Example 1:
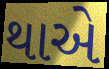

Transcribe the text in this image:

થાએ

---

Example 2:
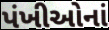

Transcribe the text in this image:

પંખીઓનાં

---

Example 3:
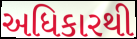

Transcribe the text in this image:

અધિકારથી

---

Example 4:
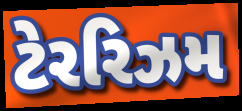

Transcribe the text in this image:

ટેરરિઝમ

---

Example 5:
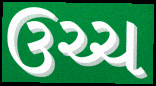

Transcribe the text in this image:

ઉચ્ચ